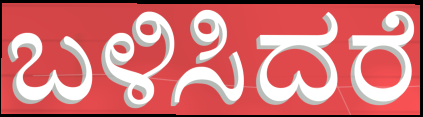
ಬಳಿಸಿದರೆ